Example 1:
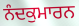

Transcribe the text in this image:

ਨੰਦਕੁਮਾਰਨ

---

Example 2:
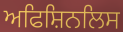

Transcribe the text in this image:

ਅਫਿਸ਼ਿਨਲਿਸ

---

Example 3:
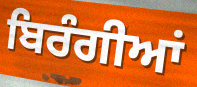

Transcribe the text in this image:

ਬਿਰੰਗੀਆਂ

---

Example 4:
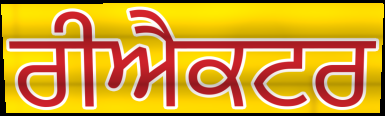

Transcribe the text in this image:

ਰੀਐਕਟਰ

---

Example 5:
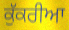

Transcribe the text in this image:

ਕੁੱਕਰੀਆ